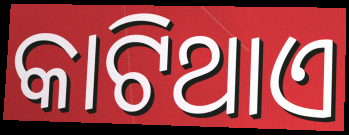
କାଟିଥାଏ